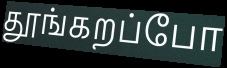
தூங்கறப்போ